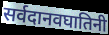
सर्वदानवघातिनी